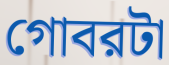
গোবরটা